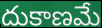
దుకాణమే